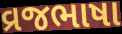
વ્રજભાષા